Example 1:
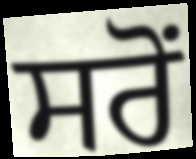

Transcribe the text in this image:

ਸਰੋਂ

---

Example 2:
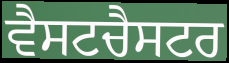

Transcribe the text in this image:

ਵੈਸਟਚੈਸਟਰ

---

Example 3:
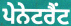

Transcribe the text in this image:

ਪੇਨੇਟਰੈਂਟ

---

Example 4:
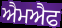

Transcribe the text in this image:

ਐਮਐਫ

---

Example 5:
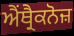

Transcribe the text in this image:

ਐਂਥ੍ਰੈਕਨੋਜ਼